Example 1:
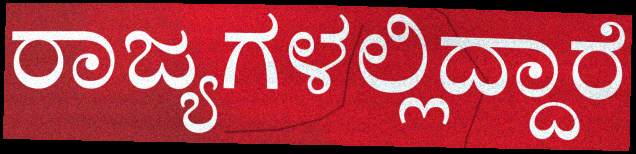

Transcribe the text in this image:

ರಾಜ್ಯಗಳಲ್ಲಿದ್ದಾರೆ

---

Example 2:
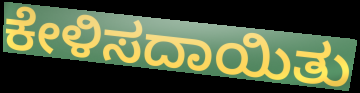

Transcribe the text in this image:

ಕೇಳಿಸದಾಯಿತು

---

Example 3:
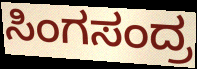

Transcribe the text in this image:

ಸಿಂಗಸಂದ್ರ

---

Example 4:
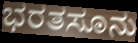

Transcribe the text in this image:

ಭರತಸೂನು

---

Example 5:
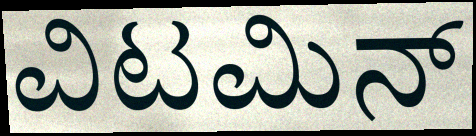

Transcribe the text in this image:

ವಿಟಮಿನ್